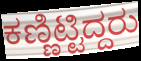
ಕಣ್ಣಿಟ್ಟಿದ್ದರು